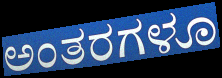
ಅಂತರಗಳೂ